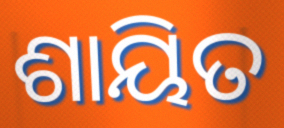
ଶାୟିତ